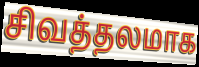
சிவத்தலமாக